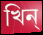
খিন্